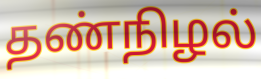
தண்நிழல்